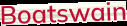
Boatswain